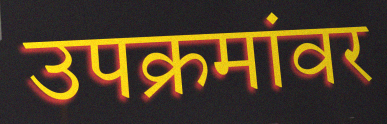
उपक्रमांवर